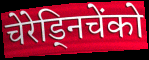
चेरेड्निचेंको